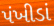
પંખીડાં